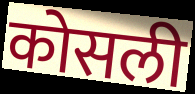
कोसली